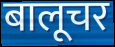
बालूचर